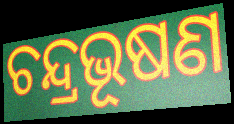
ଚନ୍ଦ୍ରଭୂଷଣ